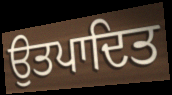
ਉਤਪਾਦਿਤ